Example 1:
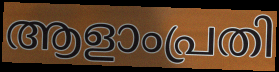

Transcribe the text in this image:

ആളാംപ്രതി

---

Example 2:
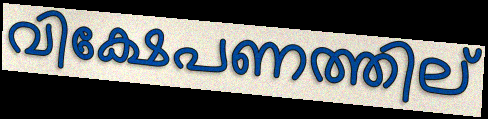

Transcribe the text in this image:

വിക്ഷേപണത്തില്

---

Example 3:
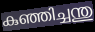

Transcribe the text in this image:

കുഞ്ഞിച്ചന്തു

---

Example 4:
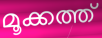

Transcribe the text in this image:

മൂക്കത്ത്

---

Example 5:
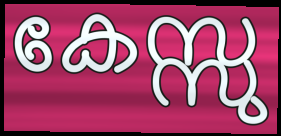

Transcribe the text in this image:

കേസ്സു